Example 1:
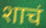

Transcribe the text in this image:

शाचं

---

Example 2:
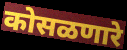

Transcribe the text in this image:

कोसळणारे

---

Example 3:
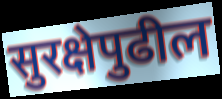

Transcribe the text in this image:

सुरक्षेपुढील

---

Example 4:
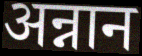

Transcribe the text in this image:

अन्नान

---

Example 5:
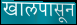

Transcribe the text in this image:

खालपासून